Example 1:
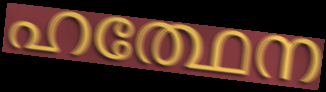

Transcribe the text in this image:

ഹത്ഥേന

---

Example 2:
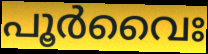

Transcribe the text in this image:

പൂർവൈഃ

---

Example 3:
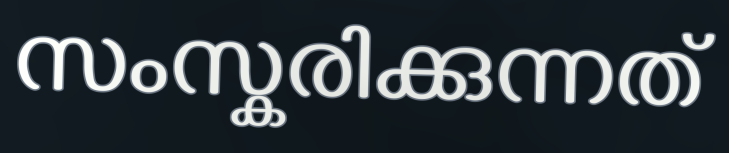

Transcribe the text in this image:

സംസ്കരിക്കുന്നത്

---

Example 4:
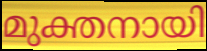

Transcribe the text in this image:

മുക്തനായി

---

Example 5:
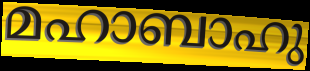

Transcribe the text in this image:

മഹാബാഹു